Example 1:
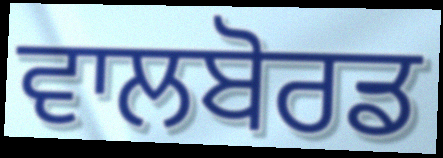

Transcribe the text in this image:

ਵਾਲਬੋਰਡ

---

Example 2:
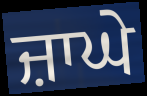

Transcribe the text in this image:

ਜ਼ਾਘੇ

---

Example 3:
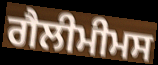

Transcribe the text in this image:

ਗੈਲੀਮੀਮਸ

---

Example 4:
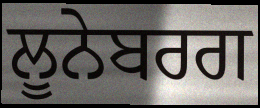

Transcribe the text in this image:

ਲੂਨੇਬਰਗ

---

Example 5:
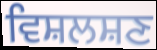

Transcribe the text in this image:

ਵਿਸ਼ਲਸ਼ਣ